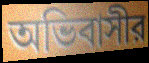
অভিবাসীর